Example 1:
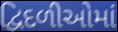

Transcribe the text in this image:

દ્વિદળીઓમાં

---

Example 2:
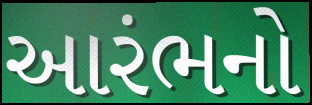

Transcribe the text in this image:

આરંભનો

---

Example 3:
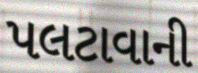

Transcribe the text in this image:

પલટાવાની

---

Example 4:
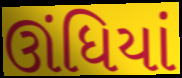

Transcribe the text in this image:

ઊંધિયાં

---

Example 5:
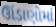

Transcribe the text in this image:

ઊંડાણોમાં